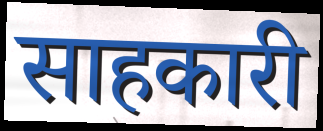
साहकारी